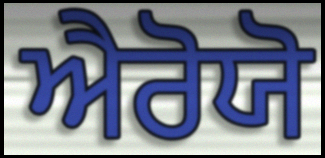
ਐਰੋਯੋ